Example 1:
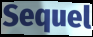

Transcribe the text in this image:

Sequel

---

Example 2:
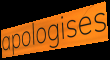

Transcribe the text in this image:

apologises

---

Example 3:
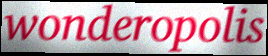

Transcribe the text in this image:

wonderopolis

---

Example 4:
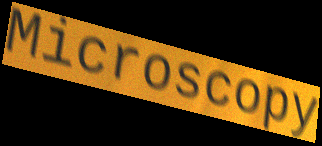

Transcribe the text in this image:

Microscopy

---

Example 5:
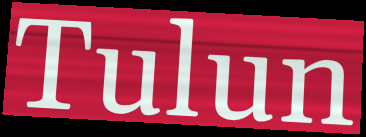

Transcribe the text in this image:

Tulun